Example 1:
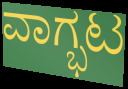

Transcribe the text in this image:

ವಾಗ್ಭಟ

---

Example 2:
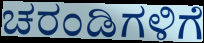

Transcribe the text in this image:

ಚರಂಡಿಗಳಿಗೆ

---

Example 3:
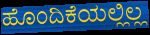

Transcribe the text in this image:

ಹೊಂದಿಕೆಯಲ್ಲಿಲ್ಲ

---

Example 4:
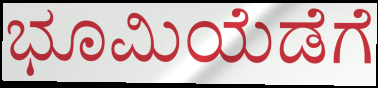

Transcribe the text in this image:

ಭೂಮಿಯೆಡೆಗೆ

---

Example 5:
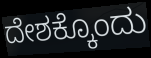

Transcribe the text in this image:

ದೇಶಕ್ಕೊಂದು